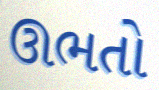
ઊભતો